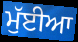
ਮੁੱਈਆ